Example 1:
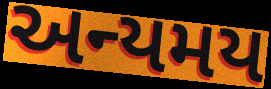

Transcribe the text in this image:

અન્યમય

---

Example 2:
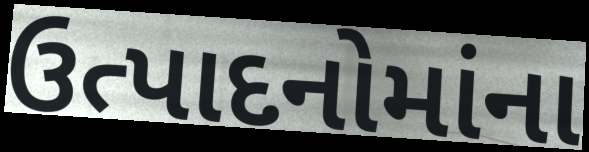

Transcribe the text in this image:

ઉત્પાદનોમાંના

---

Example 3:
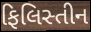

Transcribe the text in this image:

ફિલિસ્તીન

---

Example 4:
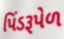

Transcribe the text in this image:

પિંડરૂપેળ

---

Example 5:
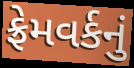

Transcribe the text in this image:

ફ્રેમવર્કનું